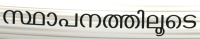
സ്ഥാപനത്തിലൂടെ